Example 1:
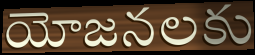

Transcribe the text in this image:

యోజనలకు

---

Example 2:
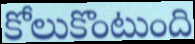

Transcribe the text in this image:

కోలుకొంటుంది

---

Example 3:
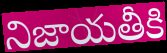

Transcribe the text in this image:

నిజాయతీకి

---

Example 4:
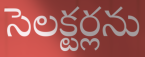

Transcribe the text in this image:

సెలక్టర్లను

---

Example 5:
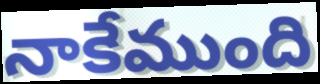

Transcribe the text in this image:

నాకేముంది